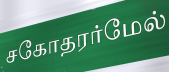
சகோதரர்மேல்